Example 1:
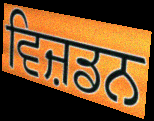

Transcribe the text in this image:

ਵਿਜ਼ਡਨ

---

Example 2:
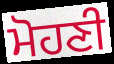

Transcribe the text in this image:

ਮੋਹਣੀ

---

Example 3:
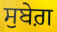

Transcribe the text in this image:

ਸੁਬੇਗ਼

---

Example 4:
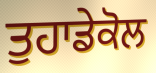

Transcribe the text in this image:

ਤੁਹਾਡੇਕੋਲ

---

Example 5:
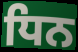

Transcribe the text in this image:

ਧਿਨ